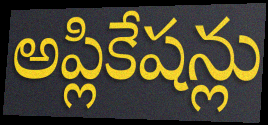
అప్లికేషన్లు